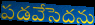
పడవేసెదను